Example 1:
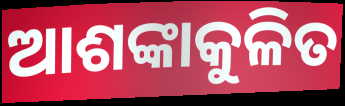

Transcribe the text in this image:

ଆଶଙ୍କାକୁଳିତ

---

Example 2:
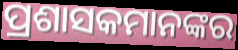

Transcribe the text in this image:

ପ୍ରଶାସକମାନଙ୍କର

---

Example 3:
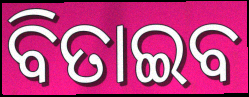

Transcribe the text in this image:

ବିତାଇବ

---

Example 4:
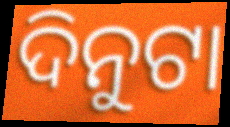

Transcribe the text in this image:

ଦିନୁଟା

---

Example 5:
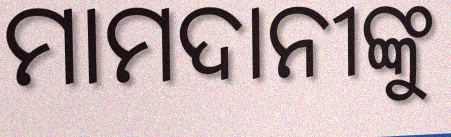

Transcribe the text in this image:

ମାମଦାନୀଙ୍କୁ